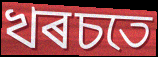
খৰচতে